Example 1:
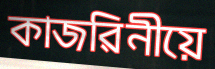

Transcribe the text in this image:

কাজৱিনীয়ে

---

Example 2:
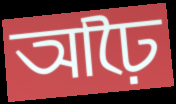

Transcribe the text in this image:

আঢ়ৈ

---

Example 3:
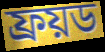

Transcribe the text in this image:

ফ্ৰয়ড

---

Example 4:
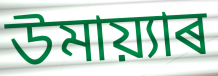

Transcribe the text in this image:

উমায়্যাৰ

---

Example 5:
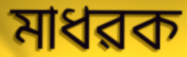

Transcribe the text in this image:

মাধৱক